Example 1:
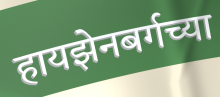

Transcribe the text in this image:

हायझेनबर्गच्या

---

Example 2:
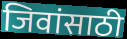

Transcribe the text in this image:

जिवांसाठी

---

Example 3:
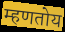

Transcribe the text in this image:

म्हणतोय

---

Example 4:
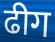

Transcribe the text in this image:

ढीग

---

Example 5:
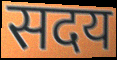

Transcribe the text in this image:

सदय